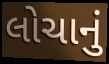
લોચાનું